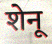
शेनू